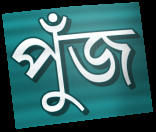
পুঁজ